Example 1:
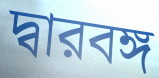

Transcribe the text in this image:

দ্বারবঙ্গ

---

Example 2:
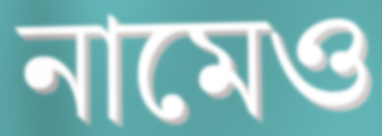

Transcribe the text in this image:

নামেও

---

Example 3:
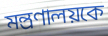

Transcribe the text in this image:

মন্ত্রণালয়কে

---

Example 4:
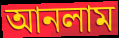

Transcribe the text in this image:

আনলাম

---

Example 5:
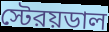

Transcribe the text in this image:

স্টেরয়ডাল